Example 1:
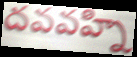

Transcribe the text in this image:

దవవహ్ని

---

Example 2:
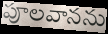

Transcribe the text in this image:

పూలవానను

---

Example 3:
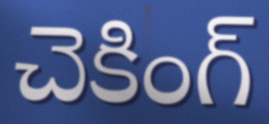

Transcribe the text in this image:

చెకింగ్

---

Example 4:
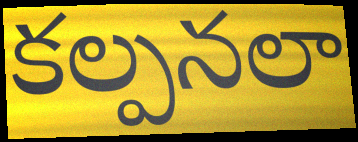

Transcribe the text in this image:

కల్పనలా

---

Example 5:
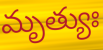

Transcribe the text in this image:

మృత్యుః